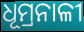
ଧୂମ୍ରନାଳୀ